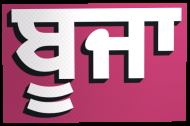
ਬੂਜਾ